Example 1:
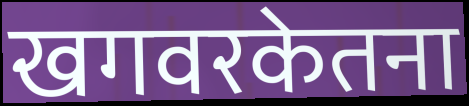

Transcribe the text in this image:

खगवरकेतना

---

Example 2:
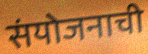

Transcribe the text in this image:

संयोजनाची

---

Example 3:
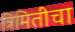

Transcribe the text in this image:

त्रिमितीचा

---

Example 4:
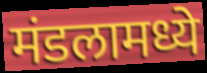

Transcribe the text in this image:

मंडलामध्ये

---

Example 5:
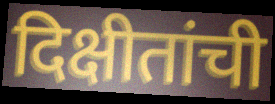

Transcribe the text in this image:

दिक्षीतांची